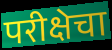
परीक्षेचा